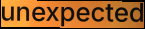
unexpected